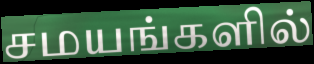
சமயங்களில்